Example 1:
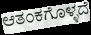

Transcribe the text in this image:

ಆತಂಕಗೊಳ್ಳದೆ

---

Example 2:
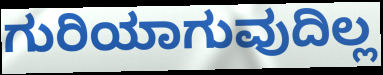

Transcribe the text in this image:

ಗುರಿಯಾಗುವುದಿಲ್ಲ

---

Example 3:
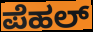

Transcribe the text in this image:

ಪೆಹಲ್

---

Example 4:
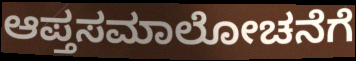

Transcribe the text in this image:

ಆಪ್ತಸಮಾಲೋಚನೆಗೆ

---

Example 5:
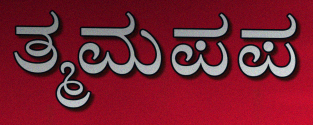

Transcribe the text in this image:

ತ್ಮಮಪಪ